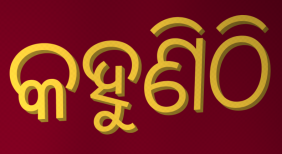
କହୁଣିଠି